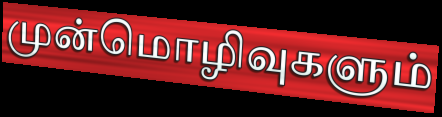
முன்மொழிவுகளும்